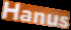
Hanus